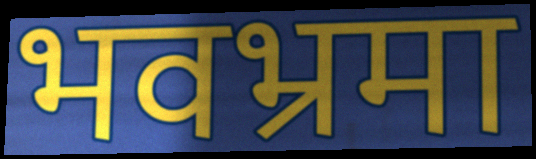
भवभ्रमा